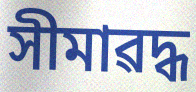
সীমাৱদ্ধ